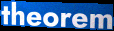
theorem